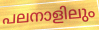
പലനാളിലും